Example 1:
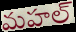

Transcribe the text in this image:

మహల్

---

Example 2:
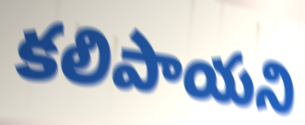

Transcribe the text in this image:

కలిపాయని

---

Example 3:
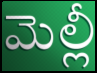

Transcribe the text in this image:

మెల్లీ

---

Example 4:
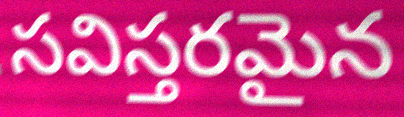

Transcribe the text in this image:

సవిస్తరమైన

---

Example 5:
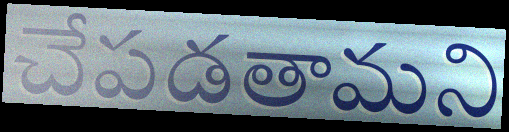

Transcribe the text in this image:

చేపడతామని